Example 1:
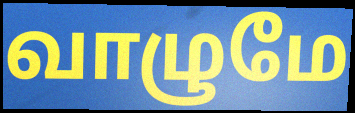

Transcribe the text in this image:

வாழுமே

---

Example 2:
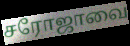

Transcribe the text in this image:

சரோஜாவை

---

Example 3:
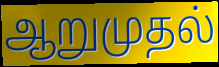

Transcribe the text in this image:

ஆறுமுதல்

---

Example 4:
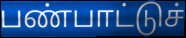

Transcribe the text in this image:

பண்பாட்டுச்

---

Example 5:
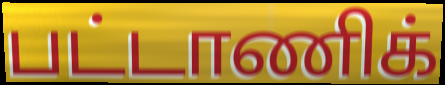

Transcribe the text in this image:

பட்டாணிக்